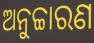
ଅନୁଚ୍ଚାରଣ